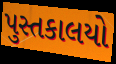
પુસ્તકાલયો